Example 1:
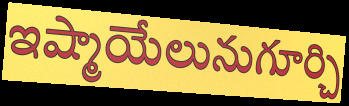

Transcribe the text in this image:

ఇష్మాయేలునుగూర్చి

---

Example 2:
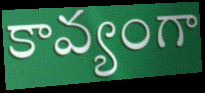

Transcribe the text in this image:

కావ్యంగా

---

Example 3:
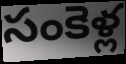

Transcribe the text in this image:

సంకెళ్ల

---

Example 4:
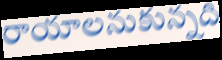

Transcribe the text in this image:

రాయాలనుకున్నది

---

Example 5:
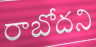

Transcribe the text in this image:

రాబోదని